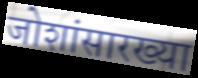
जोशांसारख्या